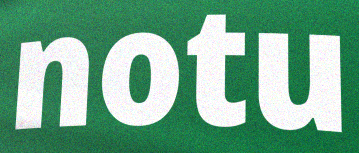
notu